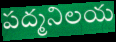
పద్మనిలయ